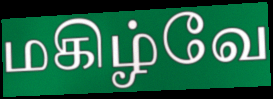
மகிழ்வே